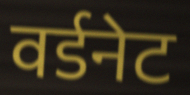
वर्डनेट